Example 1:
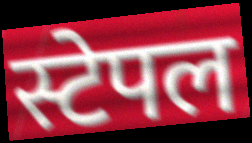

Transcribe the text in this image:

स्टेपल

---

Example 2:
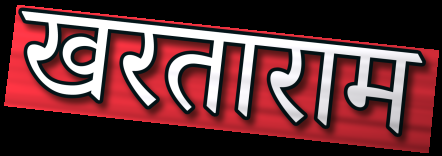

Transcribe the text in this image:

खरताराम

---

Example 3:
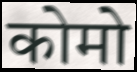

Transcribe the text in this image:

कोमो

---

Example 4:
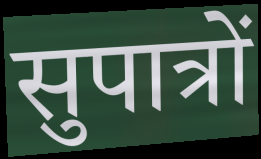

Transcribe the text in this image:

सुपात्रों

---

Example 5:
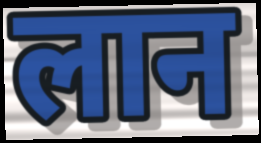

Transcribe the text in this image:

लान